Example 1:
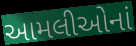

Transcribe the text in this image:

આમલીઓનાં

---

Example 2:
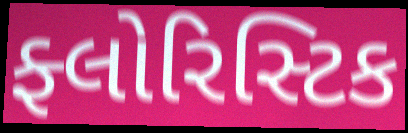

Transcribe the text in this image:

ફ્લોરિસ્ટિક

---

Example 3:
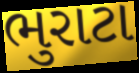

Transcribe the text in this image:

ભુરાટા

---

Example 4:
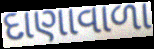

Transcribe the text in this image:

દાણાવાળા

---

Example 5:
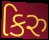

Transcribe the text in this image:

કિરુ